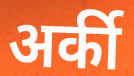
अर्की